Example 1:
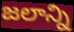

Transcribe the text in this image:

జలాన్ని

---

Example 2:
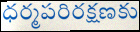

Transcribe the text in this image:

ధర్మపరిరక్షణకు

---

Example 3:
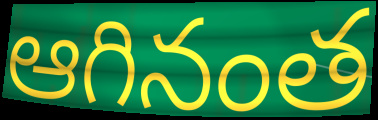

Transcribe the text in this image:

ఆగినంత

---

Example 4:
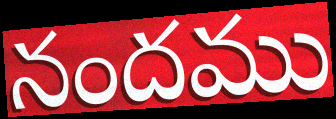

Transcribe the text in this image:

నందము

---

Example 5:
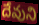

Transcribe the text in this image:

దేవుని